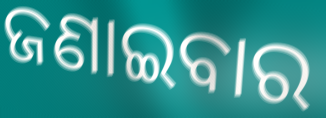
ଜଣାଇବାର